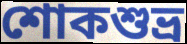
শোকশুভ্র